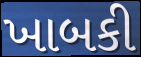
ખાબકી